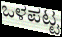
ಒಳಪಟ್ಟ